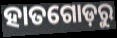
ହାତଗୋଡ଼ରୁ